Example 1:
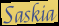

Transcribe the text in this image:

Saskia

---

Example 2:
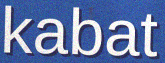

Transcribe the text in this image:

kabat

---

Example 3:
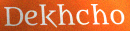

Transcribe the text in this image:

Dekhcho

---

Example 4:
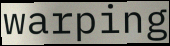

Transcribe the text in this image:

warping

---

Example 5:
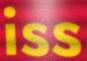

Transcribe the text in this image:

iss